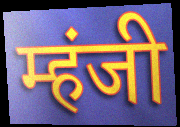
म्हंजी